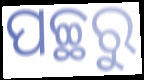
ପଚ୍ଛରୁ